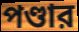
পণ্ডার